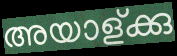
അയാള്ക്കു